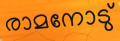
രാമനോടു്